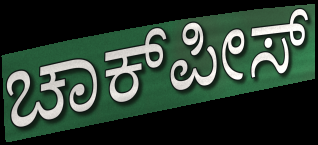
ಚಾಕ್‍ಪೀಸ್